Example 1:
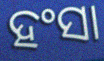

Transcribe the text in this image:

ହଂସା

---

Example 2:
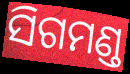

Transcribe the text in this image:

ସିଗମଣ୍ଡ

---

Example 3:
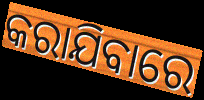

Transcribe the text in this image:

କରାଯିବାରେ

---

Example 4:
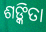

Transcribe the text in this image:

ଶଙ୍କିତା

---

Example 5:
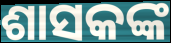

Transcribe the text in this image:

ଶାସକଙ୍କ